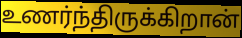
உணர்ந்திருக்கிறான்